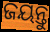
ଜୟନ୍ତୁ